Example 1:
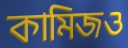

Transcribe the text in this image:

কামিজও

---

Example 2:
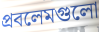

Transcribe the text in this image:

প্রবলেমগুলো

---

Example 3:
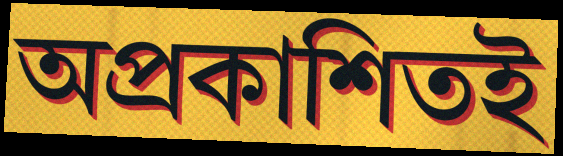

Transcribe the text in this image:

অপ্রকাশিতই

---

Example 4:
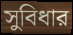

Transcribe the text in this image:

সুবিধার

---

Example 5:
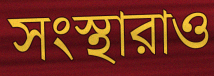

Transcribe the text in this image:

সংস্থারাও